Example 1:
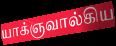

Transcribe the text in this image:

யாக்ஞவால்கிய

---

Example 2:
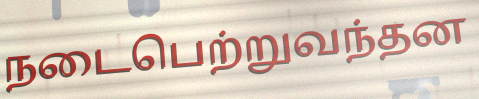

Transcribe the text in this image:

நடைபெற்றுவந்தன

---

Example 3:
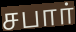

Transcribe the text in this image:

சபார்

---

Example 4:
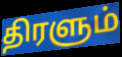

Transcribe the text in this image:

திரளும்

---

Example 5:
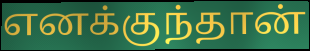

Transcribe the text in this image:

எனக்குந்தான்